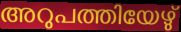
അറുപത്തിയേഴു്